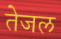
तेजल